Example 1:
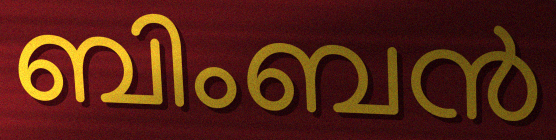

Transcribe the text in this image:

ബിംബൻ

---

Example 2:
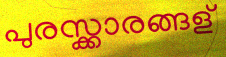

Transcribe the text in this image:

പുരസ്ക്കാരങ്ങള്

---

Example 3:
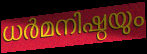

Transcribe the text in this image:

ധർമനിഷ്ഠയും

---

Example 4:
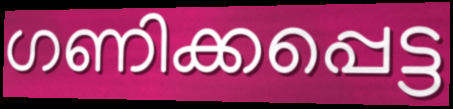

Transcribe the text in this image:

ഗണിക്കപ്പെട്ട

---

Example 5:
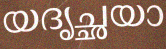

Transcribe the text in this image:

യദൃച്ഛയാ